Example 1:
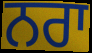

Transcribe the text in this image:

ਨਰਾ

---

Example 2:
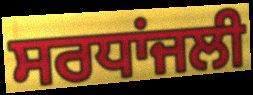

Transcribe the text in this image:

ਸਰਧਾਂਜਲੀ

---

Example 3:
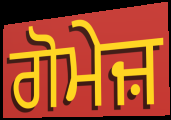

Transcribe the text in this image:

ਗੋਮੇਜ਼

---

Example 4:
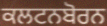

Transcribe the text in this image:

ਕਲਟਨਬੋਰਨ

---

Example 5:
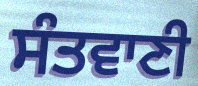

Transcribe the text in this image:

ਸੰਤਵਾਣੀ